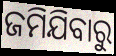
ଜମିଯିବାରୁ